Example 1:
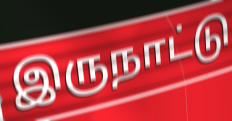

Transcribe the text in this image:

இருநாட்டு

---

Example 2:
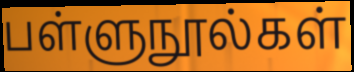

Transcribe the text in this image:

பள்ளுநூல்கள்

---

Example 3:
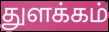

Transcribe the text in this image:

துளக்கம்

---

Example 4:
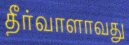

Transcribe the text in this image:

தீர்வாளாவது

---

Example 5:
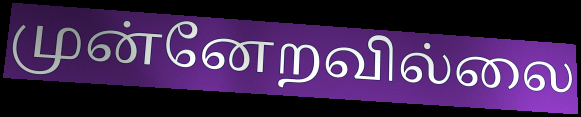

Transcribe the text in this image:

முன்னேறவில்லை